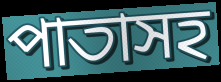
পাতাসহ